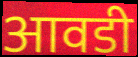
आवडी